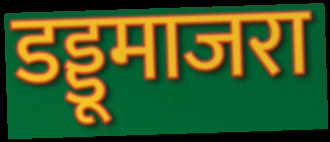
डड्डूमाजरा